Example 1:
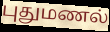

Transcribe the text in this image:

புதுமணல்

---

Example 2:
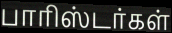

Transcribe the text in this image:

பாரிஸ்டர்கள்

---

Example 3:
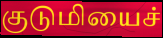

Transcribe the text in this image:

குடுமியைச்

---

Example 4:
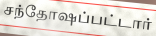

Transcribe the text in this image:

சந்தோஷப்பட்டார்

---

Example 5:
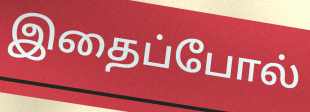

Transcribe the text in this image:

இதைப்போல்